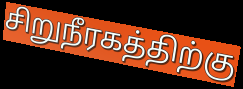
சிறுநீரகத்திற்கு